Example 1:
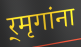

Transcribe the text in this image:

र्मृगांना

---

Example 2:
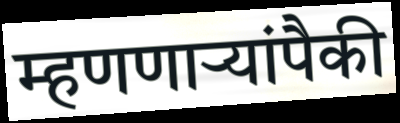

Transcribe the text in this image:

म्हणणाऱ्यांपैकी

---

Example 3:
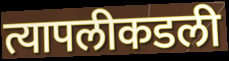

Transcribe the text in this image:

त्यापलीकडली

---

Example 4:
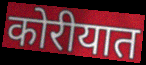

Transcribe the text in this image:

कोरीयात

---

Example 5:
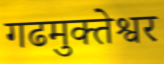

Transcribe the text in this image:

गढमुक्तेश्वर